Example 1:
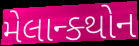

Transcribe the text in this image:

મેલાન્ક્થોન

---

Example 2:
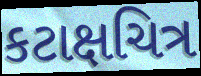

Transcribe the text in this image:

કટાક્ષચિત્ર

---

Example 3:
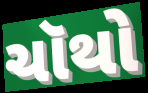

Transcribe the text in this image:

ચૉથો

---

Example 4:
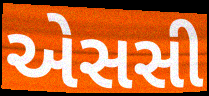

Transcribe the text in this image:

એસસી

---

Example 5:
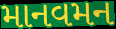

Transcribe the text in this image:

માનવમન